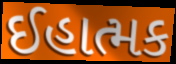
ઈહાત્મક